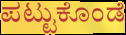
ಪಟ್ಟುಕೊಂಡೆ